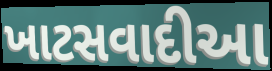
ખાટસવાદીઆ